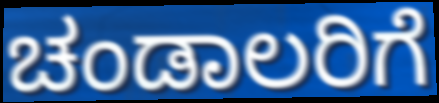
ಚಂಡಾಲರಿಗೆ